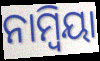
ନାମ୍ୱିୟା